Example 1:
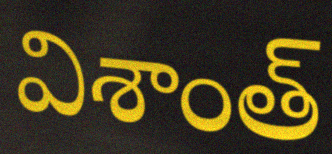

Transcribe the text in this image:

విశాంత్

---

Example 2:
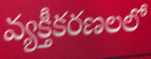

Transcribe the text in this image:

వ్యక్తీకరణలలో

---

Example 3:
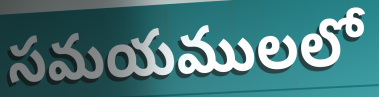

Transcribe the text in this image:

సమయములలో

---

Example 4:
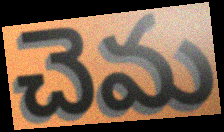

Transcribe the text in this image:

చెమ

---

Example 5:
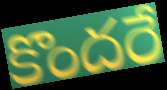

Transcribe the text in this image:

కొందరే